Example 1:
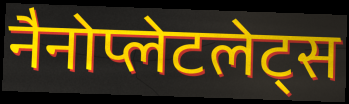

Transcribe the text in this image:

नैनोप्लेटलेट्स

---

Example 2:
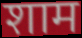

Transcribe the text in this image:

शाम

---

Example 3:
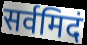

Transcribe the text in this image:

सर्वमिदं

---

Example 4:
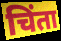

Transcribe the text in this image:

चिंता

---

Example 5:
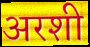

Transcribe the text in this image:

अरशी